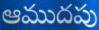
ఆముదపు